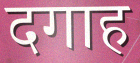
दगाह